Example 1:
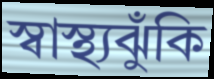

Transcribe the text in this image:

স্বাস্থ্যঝুঁকি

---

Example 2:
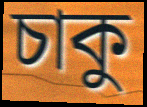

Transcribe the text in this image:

চাকু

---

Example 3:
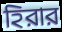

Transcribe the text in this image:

হিরার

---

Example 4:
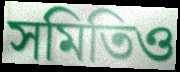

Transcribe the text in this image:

সমিতিও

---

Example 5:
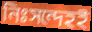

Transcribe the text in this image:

নিঃসন্দেহই